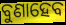
ବୁଣାହେବ